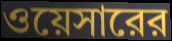
ওয়েসারের